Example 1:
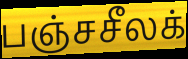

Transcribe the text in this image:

பஞ்சசீலக்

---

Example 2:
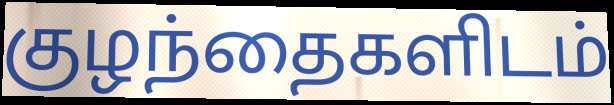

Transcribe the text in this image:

குழந்தைகளிடம்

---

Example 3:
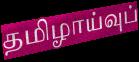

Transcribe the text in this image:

தமிழாய்வுப்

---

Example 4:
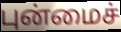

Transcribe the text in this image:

புன்மைச்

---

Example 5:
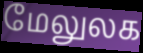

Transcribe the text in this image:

மேலுலக